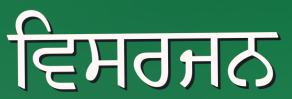
ਵਿਸਰਜਨ